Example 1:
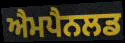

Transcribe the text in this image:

ਐਮਪੈਨਲਡ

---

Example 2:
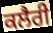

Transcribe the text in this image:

ਕਲੈਰੀ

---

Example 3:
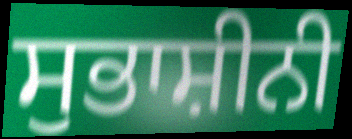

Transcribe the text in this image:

ਸੁਭਾਸ਼ੀਨੀ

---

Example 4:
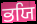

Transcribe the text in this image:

ਭਯਿ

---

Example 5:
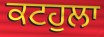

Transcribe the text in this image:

ਕਟਹੁਲਾ